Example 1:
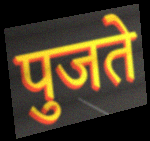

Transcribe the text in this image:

पुजते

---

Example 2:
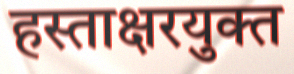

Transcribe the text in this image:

हस्ताक्षरयुक्त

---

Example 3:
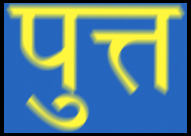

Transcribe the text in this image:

पुत्त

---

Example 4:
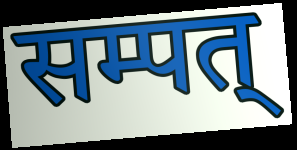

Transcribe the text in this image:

सम्पत्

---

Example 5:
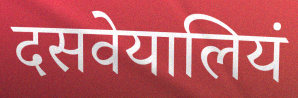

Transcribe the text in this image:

दसवेयालियं